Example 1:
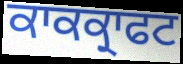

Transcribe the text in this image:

ਕਾਕਕ੍ਰਾਫਟ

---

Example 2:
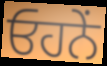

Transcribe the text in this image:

ਓਹਨੇੰ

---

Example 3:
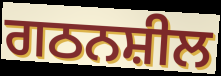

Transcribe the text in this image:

ਗਠਨਸ਼ੀਲ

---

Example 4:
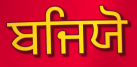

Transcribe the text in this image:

ਬਜਿਯੋ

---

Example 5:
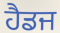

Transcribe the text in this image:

ਹੈਡਜ